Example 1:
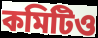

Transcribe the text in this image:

কমিটিও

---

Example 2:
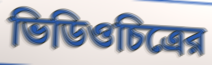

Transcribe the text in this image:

ভিডিওচিত্রের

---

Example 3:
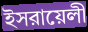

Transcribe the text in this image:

ইসরায়েলী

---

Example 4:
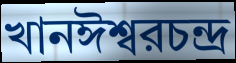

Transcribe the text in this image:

খানঈশ্বরচন্দ্র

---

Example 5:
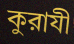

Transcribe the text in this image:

কুরাযী